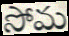
సోమ